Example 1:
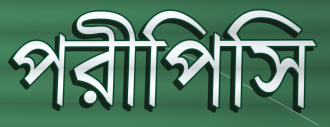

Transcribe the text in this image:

পরীপিসি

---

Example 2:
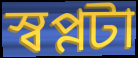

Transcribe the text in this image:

স্বপ্নটা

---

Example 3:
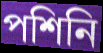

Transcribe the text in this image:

পশিনি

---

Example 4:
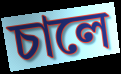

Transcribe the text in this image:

চালে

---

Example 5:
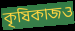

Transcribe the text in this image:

কৃষিকাজও